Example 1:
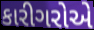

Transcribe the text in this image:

કારીગરોએ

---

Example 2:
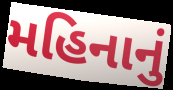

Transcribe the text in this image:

મહિનાનું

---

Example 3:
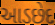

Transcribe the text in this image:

આડછેદ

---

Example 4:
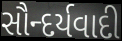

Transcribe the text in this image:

સૌન્દર્યવાદી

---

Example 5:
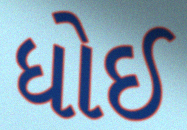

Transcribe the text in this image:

ધોઈ